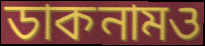
ডাকনামও